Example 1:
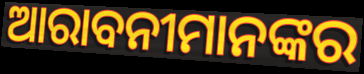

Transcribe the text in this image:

ଆରାବନୀମାନଙ୍କର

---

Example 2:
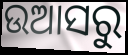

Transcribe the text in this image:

ଉଆସରୁ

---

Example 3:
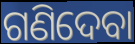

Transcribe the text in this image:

ଗଣିଦେବା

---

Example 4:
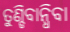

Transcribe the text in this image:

ତୁଣ୍ଡିବାନ୍ଧିବା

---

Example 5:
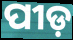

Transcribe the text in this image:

ପୀଡ଼